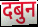
दबुन